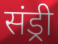
संड्री